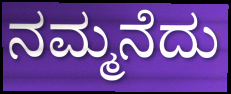
ನಮ್ಮನೆದು